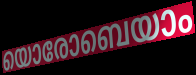
യൊരോബെയാം